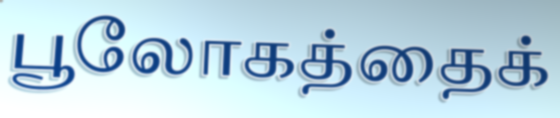
பூலோகத்தைக்